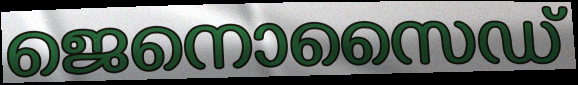
ജെനൊസൈഡ്